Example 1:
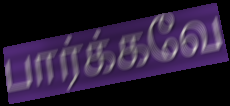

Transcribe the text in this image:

பார்க்கவே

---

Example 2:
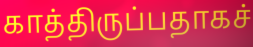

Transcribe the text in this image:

காத்திருப்பதாகச்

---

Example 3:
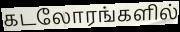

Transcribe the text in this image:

கடலோரங்களில்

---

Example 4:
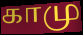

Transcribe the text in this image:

காமு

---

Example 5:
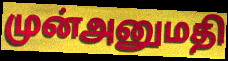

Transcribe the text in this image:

முன்அனுமதி